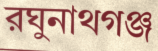
রঘুনাথগঞ্জ